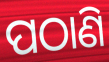
ପଠାଣି